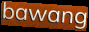
bawang